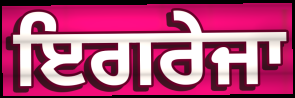
ਇਗਰੇਜਾ